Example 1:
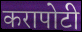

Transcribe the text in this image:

करापोटी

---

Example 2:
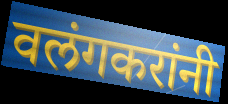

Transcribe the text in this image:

वलंगकरांनी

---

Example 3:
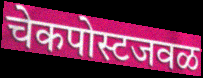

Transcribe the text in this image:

चेकपोस्टजवळ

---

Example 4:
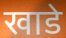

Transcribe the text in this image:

खाडे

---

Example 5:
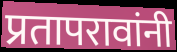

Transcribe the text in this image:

प्रतापरावांनी